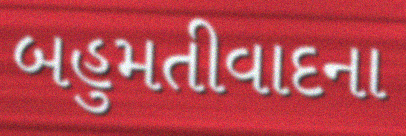
બહુમતીવાદના